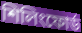
শিলিংফোর্ড